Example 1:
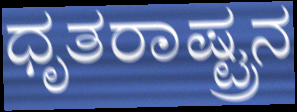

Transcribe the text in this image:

ಧೃತರಾಷ್ಟ್ರನ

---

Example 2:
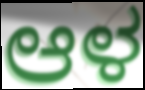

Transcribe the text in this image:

ಆಳ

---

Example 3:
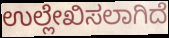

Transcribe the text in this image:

ಉಲ್ಲೇಖಿಸಲಾಗಿದೆ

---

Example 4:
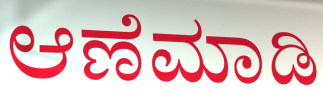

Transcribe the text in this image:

ಆಣೆಮಾಡಿ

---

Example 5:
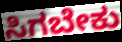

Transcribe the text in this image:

ಸಿಗಬೇಕು